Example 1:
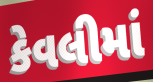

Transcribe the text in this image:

કેવલીમાં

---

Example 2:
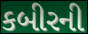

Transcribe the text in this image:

કબીરની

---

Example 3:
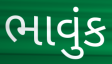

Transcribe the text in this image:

ભાવુંક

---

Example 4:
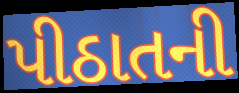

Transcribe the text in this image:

પીઠાતની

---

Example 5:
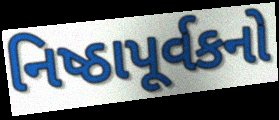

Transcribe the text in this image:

નિષ્ઠાપૂર્વકનો